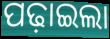
ପଢ଼ାଇଲା